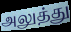
அலுத்து